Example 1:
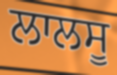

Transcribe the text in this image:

ਲਾਲਸੂ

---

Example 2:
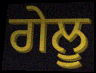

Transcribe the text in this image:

ਗੇਲੂ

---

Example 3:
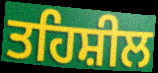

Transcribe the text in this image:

ਤਹਿਸ਼ੀਲ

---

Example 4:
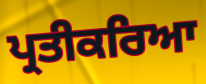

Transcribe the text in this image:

ਪ੍ਰਤੀਕਰਿਆ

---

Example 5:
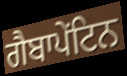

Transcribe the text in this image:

ਗੈਬਾਪੇਂਟਿਨ